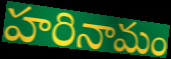
హరినామం